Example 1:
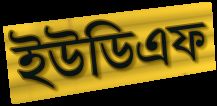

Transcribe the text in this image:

ইউডিএফ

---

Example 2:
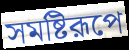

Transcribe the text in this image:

সমষ্টিরূপে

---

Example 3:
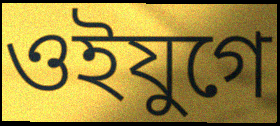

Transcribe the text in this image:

ওইযুগে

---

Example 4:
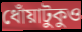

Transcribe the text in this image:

ধোঁয়াটুকুও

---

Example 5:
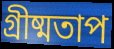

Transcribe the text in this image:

গ্রীষ্মতাপ